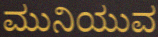
ಮುನಿಯುವ